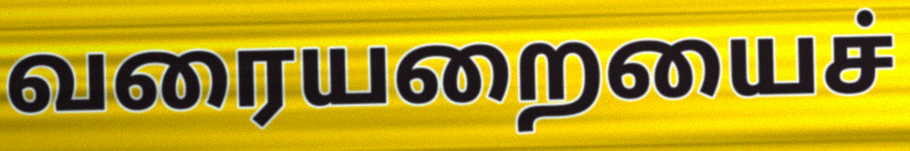
வரையறையைச்